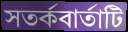
সতর্কবার্তাটি